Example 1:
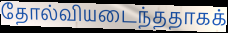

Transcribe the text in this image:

தோல்வியடைந்ததாகக்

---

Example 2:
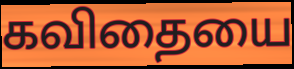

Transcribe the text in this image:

கவிதையை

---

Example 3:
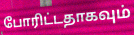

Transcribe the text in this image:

போரிட்டதாகவும்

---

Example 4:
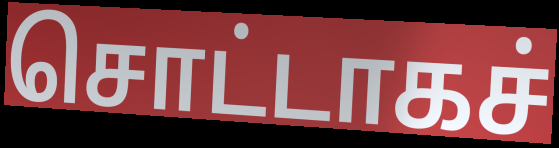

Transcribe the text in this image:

சொட்டாகச்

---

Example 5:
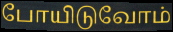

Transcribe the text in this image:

போயிடுவோம்